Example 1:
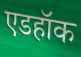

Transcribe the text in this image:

एडहॉक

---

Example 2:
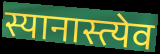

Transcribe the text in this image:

स्यानास्त्येव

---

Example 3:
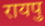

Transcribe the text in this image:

रायपु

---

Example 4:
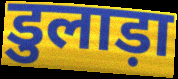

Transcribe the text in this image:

डुलाड़ा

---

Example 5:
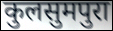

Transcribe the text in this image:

कुलसुमपुरा